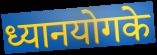
ध्यानयोगके